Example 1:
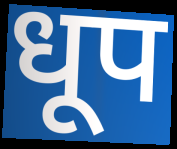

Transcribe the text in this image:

धूप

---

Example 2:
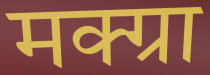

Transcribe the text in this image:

मक्ग्रा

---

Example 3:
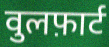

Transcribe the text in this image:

वुलफ़ार्ट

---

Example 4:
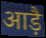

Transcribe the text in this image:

आड़ै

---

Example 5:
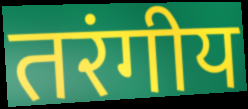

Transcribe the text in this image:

तरंगीय